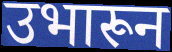
उभारून